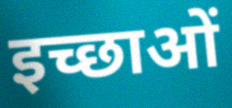
इच्छाओं